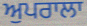
ਅੁਪਰਾਲਾ